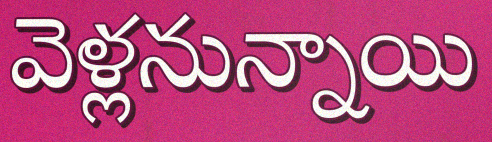
వెళ్లనున్నాయి